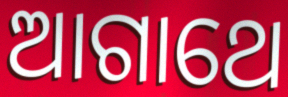
ଆଗାଥେ